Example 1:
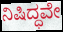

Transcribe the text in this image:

ನಿಷಿದ್ಧವೇ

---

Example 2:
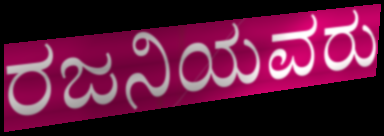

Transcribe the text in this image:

ರಜನಿಯವರು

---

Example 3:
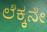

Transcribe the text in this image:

ಲೆಕ್ಕನೇ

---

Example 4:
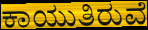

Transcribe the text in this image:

ಕಾಯುತಿರುವೆ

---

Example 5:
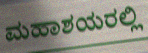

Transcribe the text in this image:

ಮಹಾಶಯರಲ್ಲಿ